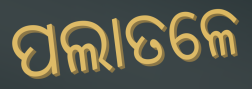
ପଲାତଳେ